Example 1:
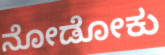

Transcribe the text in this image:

ನೋಡೋಕು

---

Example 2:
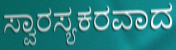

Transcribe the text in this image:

ಸ್ವಾರಸ್ಯಕರವಾದ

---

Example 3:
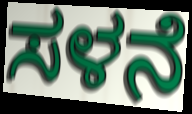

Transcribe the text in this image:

ಸಳನೆ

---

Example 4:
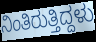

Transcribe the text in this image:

ನಿಂತಿರುತ್ತಿದ್ದಳು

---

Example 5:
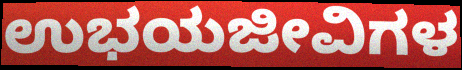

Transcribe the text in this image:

ಉಭಯಜೀವಿಗಳ